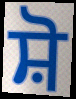
ਸ਼ੋ